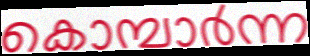
കൊമ്പാർന്ന